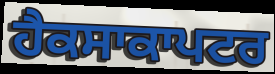
ਹੈਕਸਾਕਾਪਟਰ